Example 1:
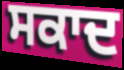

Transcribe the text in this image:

ਸਕਾਦ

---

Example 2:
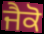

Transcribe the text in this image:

ਜੈਕੋ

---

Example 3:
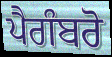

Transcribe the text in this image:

ਪੈਗੰਬਰੋ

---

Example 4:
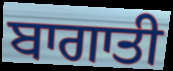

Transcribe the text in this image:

ਬਾਗਾਤੀ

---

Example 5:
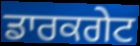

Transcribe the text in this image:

ਡਾਰਕਗੇਟ